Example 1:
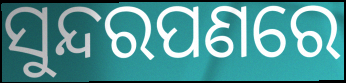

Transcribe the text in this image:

ସୁନ୍ଦରପଣରେ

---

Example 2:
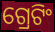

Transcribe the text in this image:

ଗ୍ରେଟିଂ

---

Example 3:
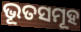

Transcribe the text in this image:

ଭୂତସମୂହ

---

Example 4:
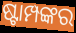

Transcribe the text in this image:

ଷ୍ଟାମ୍ପଙ୍କର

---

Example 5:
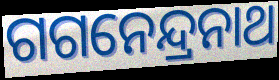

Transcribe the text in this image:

ଗଗନେନ୍ଦ୍ରନାଥ